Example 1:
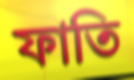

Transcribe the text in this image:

ফাতি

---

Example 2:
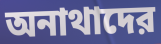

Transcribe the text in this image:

অনাথাদের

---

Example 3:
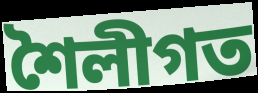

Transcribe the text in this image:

শৈলীগত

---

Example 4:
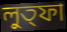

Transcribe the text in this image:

লুত্ফা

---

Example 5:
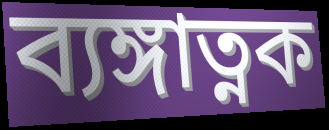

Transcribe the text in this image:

ব্যঙ্গাত্নক